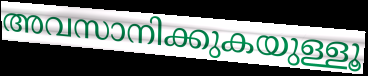
അവസാനിക്കുകയുള്ളൂ